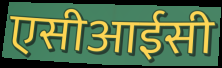
एसीआईसी